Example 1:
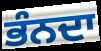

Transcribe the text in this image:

ਭੰਨਦਾ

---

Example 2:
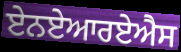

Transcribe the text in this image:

ਏਨਏਆਰਏਐਸ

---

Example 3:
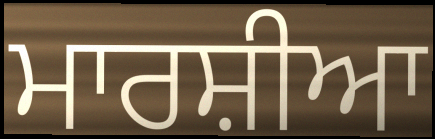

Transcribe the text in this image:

ਮਾਰਸ਼ੀਆ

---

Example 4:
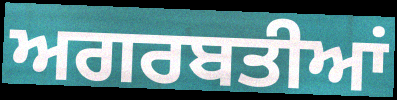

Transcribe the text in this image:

ਅਗਰਬਤੀਆਂ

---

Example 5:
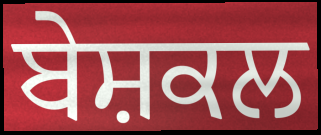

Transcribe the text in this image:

ਬੇਸ਼ਕਲ